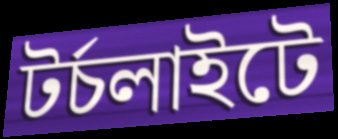
টর্চলাইটে